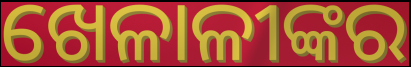
ଖେଳାଳୀଙ୍କର